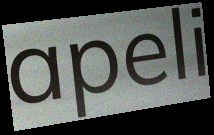
apeli